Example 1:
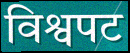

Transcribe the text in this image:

विश्वपट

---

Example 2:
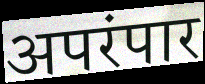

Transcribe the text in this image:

अपरंपार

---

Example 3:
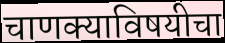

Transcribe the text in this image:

चाणक्याविषयीचा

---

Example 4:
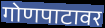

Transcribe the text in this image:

गोणपाटावर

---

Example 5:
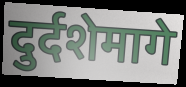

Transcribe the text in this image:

दुर्दशेमागे